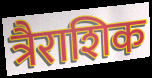
त्रैराशिक